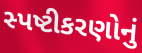
સ્પષ્ટીકરણોનું